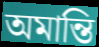
অমান্তি